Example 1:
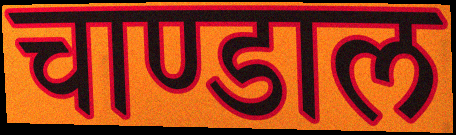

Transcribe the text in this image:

चाण्डाल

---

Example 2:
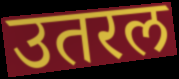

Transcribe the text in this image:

उतरल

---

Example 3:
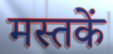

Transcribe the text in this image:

मस्तकें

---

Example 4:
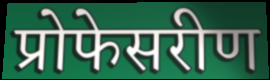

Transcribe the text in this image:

प्रोफेसरीण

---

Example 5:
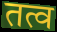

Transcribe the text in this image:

तत्व